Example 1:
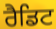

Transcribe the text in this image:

ਰੈਡਿਟ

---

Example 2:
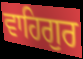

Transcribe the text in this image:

ਵਾਹਿਗੁਰ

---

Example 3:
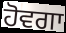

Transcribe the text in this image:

ਹੋਵਗਾ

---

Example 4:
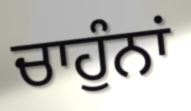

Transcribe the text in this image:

ਚਾਹੁੰਨਾਂ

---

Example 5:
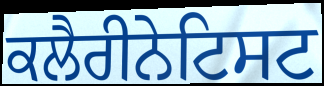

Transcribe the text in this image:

ਕਲੈਰੀਨੇਟਿਸਟ